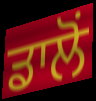
ਡਾਲੋਂ